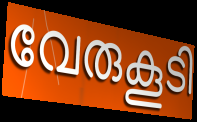
വേരുകൂടി